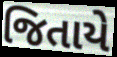
જિતાયે